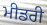
ਮੀਡਰੀ